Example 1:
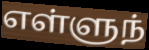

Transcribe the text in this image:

எள்ளுந்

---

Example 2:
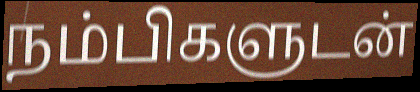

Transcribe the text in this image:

நம்பிகளுடன்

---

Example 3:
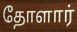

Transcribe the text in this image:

தோளார்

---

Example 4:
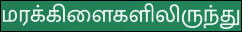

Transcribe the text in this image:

மரக்கிளைகளிலிருந்து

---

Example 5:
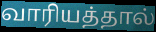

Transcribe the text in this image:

வாரியத்தால்